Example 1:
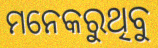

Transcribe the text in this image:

ମନେକରୁଥିବୁ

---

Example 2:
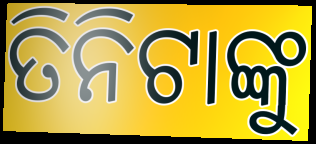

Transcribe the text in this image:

ତିନିଟାଙ୍କୁ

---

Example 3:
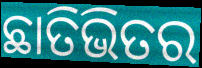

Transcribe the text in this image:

ଛାତିଭିତର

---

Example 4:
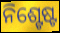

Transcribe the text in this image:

ନିଶ୍ଟେଷ୍ଟ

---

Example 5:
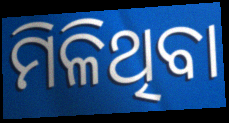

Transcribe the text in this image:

ମିଳିଥିବା